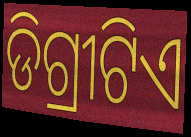
ଡିଗ୍ରୀଟିଏ